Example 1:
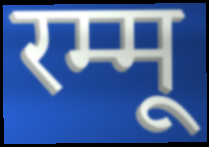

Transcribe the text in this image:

रम्मू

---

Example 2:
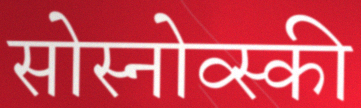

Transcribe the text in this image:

सोस्नोव्स्की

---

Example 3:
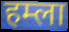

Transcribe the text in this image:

हम्ला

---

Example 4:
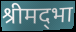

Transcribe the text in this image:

श्रीमद्भा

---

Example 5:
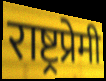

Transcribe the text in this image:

राष्ट्रप्रेमी